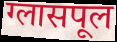
ग्लासपूल